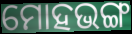
ମୋହଭଙ୍ଗ